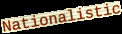
Nationalistic